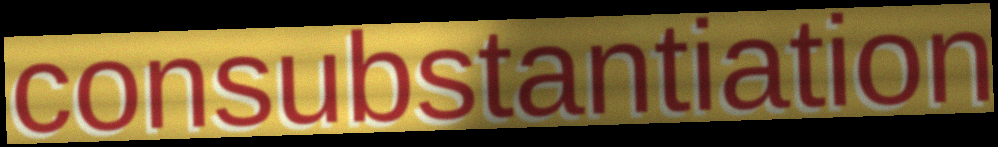
consubstantiation